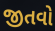
જીતવો